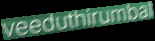
veeduthirumbal